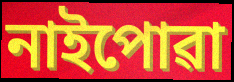
নাইপোৱা